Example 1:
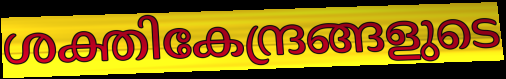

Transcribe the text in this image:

ശക്തികേന്ദ്രങ്ങളുടെ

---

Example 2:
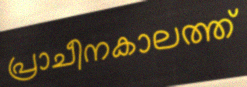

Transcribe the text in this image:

പ്രാചീനകാലത്ത്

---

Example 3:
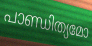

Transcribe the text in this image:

പാണ്ഡിത്യമോ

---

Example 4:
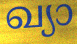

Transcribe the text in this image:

ഖ്യാ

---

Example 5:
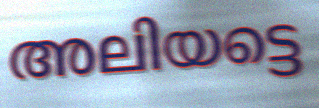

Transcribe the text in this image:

അലിയട്ടെ